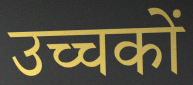
उच्चकों